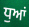
ਧੁਆਂ